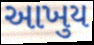
આખુય